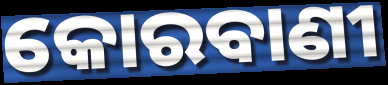
କୋରବାଣୀ